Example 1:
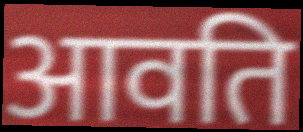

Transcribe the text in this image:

आवति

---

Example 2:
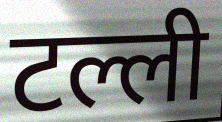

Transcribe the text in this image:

टल्ली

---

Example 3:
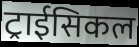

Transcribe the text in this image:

ट्राईसिकल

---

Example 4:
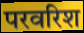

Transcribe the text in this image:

परवरिश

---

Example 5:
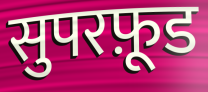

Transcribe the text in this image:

सुपरफ़ूड